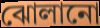
ঝোলানো